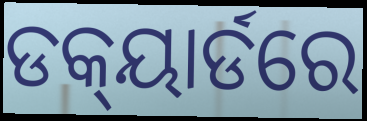
ଡକ୍‍ୟାର୍ଡରେ